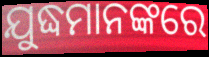
ଯୁଦ୍ଧମାନଙ୍କରେ